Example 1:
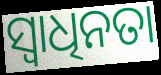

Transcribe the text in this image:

ସ୍ୱାଧିନତା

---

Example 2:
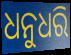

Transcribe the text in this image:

ଧନୁଧରି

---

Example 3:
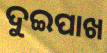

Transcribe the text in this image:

ଦୁଇପାଖ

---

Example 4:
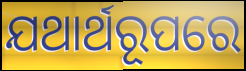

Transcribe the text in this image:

ଯଥାର୍ଥରୂପରେ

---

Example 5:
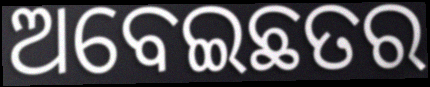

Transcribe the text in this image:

ଅବେଇଛତର